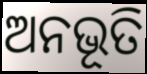
ଅନଭୂତି